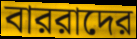
বাররাদের